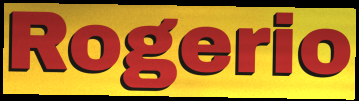
Rogerio